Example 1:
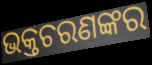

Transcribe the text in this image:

ଭକ୍ତଚରଣଙ୍କର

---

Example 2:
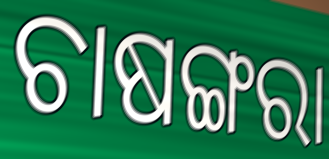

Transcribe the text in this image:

ଚାଷଙ୍ଗରା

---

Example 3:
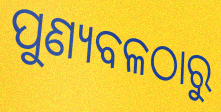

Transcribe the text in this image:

ପୁଣ୍ୟବଳଠାରୁ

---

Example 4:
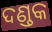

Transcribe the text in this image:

ଦଣ୍ଡକ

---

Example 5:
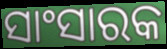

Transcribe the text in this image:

ସାଂସାରକ